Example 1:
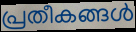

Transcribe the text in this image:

പ്രതീകങ്ങൾ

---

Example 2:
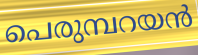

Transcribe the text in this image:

പെരുമ്പറയൻ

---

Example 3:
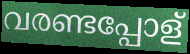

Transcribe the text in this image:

വരണ്ടപ്പോള്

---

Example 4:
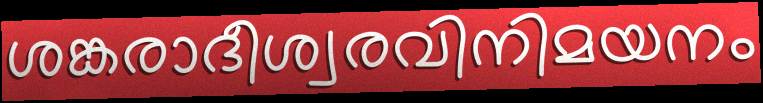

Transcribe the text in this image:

ശങ്കരാദീശ്വരവിനിമയനം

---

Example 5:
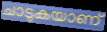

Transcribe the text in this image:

ചാടുകയാണ്